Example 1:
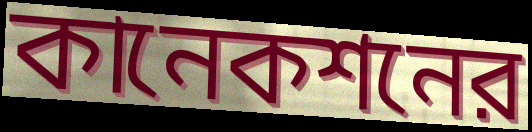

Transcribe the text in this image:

কানেকশনের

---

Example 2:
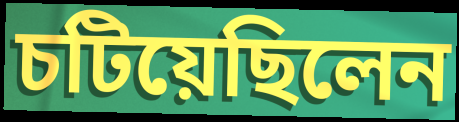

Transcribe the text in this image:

চটিয়েছিলেন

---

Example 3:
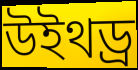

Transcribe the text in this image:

উইথড্র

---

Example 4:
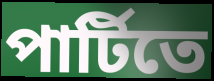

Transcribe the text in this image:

পার্টিতে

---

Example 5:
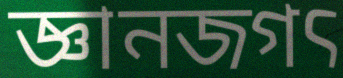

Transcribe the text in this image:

জ্ঞানজগৎ